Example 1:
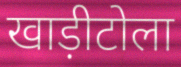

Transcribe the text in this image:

खाड़ीटोला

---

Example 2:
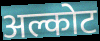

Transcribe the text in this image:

अल्कोट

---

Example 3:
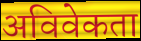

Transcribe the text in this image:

अविवेकता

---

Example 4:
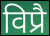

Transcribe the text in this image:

विप्रै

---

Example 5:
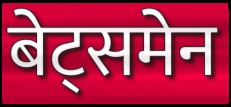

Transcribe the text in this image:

बेट्समेन